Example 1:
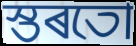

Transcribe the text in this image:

স্তৰতো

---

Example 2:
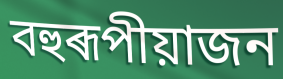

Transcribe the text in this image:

বহুৰূপীয়াজন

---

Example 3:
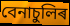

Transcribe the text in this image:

বেনাচুলিৰ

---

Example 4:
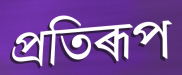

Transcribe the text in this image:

প্ৰতিৰূপ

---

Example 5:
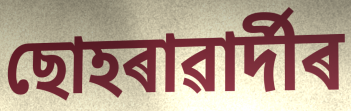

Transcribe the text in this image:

ছোহৰাৱাৰ্দীৰ